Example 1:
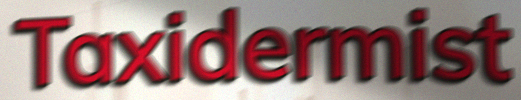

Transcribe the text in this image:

Taxidermist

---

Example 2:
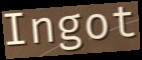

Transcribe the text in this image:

Ingot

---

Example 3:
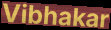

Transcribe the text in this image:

Vibhakar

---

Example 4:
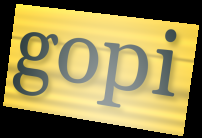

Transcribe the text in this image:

gopi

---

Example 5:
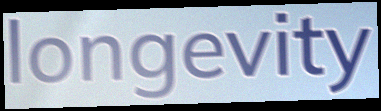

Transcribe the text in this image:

longevity